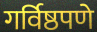
गर्विष्ठपणे